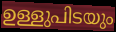
ഉള്ളുപിടയും